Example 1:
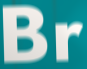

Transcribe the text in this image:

Br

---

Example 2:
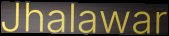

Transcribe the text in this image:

Jhalawar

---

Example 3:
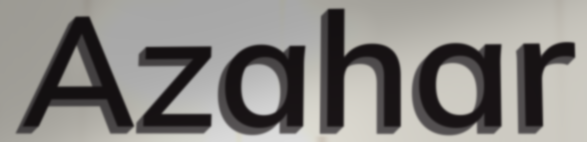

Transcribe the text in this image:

Azahar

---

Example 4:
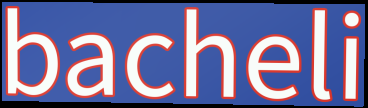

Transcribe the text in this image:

bacheli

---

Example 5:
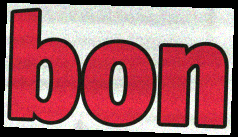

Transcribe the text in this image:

bon